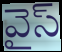
వైస్